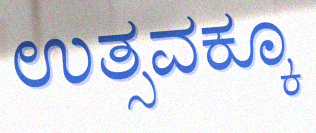
ಉತ್ಸವಕ್ಕೂ